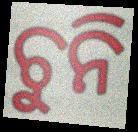
ଚୁନି